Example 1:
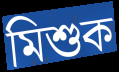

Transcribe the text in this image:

মিশুক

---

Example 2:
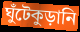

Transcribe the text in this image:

ঘুঁটেকুড়ানি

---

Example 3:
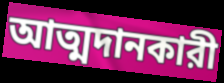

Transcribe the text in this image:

আত্মদানকারী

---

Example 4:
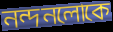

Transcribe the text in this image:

নন্দনলোকে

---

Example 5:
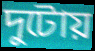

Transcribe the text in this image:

দুটোয়